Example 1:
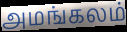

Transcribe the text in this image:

அமங்கலம்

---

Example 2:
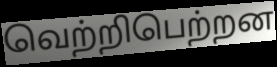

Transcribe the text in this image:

வெற்றிபெற்றன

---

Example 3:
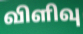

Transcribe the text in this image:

விளிவு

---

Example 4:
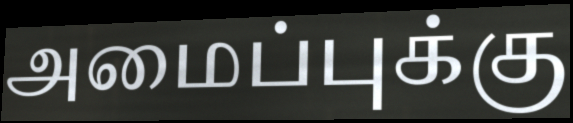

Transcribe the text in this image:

அமைப்புக்கு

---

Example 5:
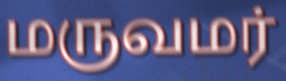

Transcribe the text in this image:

மருவமர்